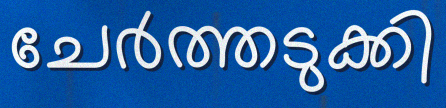
ചേർത്തടുക്കി